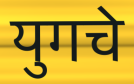
युगचे